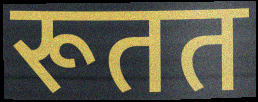
रूतत